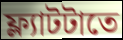
ফ্ল্যাটটাতে